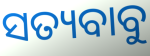
ସତ୍ୟବାବୁ